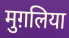
मुग़लिया